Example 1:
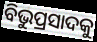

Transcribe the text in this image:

ବିଭୁପ୍ରସାଦକୁ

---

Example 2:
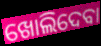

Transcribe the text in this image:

ଖୋଲିଦେବା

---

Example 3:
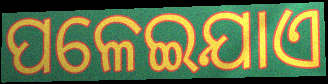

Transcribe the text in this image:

ପଳେଇଯାଏ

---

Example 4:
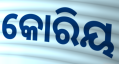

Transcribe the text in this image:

କୋରିୟ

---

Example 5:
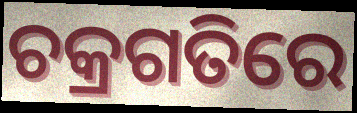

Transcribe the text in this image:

ଚକ୍ରଗତିରେ